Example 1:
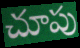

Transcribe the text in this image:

చూపు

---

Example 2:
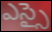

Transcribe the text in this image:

ఎస్సై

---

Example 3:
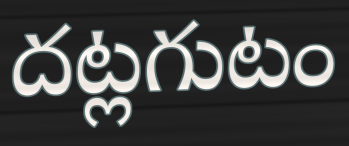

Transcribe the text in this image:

దట్లగుటం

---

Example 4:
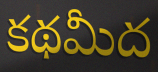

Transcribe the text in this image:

కథమీద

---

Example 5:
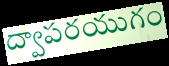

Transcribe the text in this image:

ద్వాపరయుగం